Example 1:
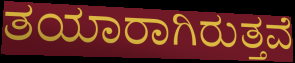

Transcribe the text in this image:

ತಯಾರಾಗಿರುತ್ತವೆ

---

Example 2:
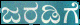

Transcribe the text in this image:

ಜರಡಿಗೆ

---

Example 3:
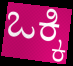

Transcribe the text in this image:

ಒಕ್ಕಿ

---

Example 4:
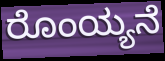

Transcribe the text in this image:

ರೊಂಯ್ಯನೆ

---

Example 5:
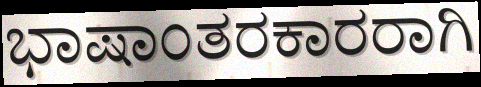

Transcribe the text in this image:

ಭಾಷಾಂತರಕಾರರಾಗಿ